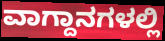
ವಾಗ್ದಾನಗಳಲ್ಲಿ